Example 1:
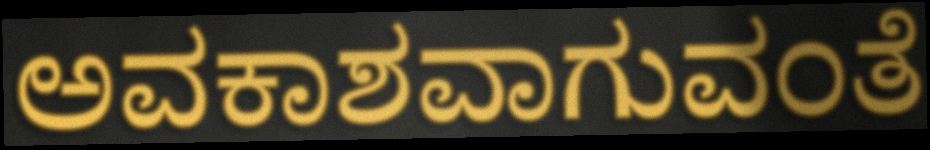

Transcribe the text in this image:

ಅವಕಾಶವಾಗುವಂತೆ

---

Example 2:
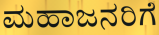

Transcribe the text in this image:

ಮಹಾಜನರಿಗೆ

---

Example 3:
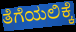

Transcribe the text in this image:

ತೆಗೆಯಲಿಕ್ಕೆ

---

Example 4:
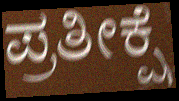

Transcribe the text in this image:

ಪ್ರತೀಕ್ಷೆ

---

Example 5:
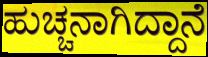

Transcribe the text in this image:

ಹುಚ್ಚನಾಗಿದ್ದಾನೆ